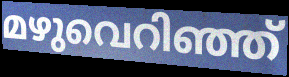
മഴുവെറിഞ്ഞ്